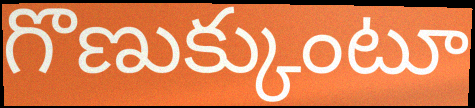
గొణుక్కుంటూ